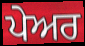
ਪੇਅਰ